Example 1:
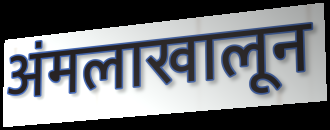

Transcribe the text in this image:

अंमलाखालून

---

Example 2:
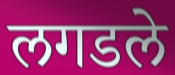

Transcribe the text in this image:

लगडले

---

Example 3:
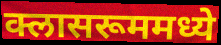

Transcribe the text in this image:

क्लासरूममध्ये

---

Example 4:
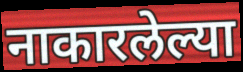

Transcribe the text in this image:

नाकारलेल्या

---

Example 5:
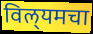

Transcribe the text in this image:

विल्यमचा